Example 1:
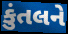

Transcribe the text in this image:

કુંતલને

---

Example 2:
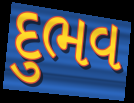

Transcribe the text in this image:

દુભવ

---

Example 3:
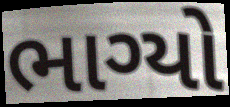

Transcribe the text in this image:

ભાગ્યો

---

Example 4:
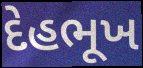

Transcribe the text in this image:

દેહભૂખ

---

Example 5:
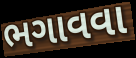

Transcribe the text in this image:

ભગાવવા